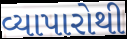
વ્યાપારોથી